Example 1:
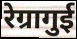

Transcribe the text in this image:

रेग्रागुई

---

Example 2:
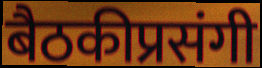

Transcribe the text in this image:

बैठकीप्रसंगी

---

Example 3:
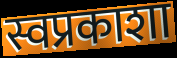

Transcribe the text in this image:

स्वप्रकाशा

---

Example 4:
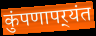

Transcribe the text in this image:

कुंपणापर्यंत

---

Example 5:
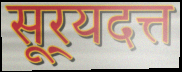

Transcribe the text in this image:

सूर्यदत्त